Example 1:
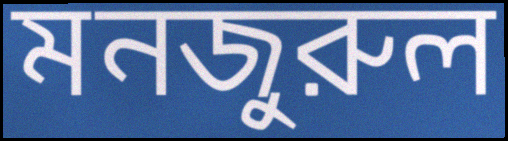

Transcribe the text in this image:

মনজুরুল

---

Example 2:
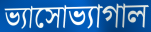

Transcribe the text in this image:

ভ্যাসোভ্যাগাল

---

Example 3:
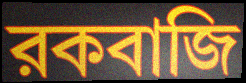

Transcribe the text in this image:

রকবাজি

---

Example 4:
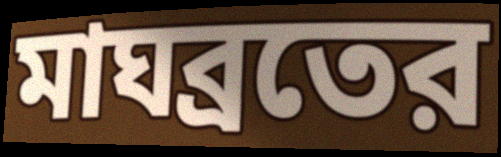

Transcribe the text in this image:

মাঘব্রতের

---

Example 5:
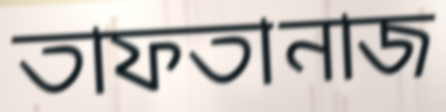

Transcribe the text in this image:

তাফতানাজ